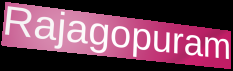
Rajagopuram